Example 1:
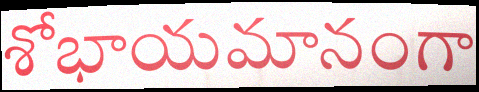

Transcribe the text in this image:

శోభాయమానంగా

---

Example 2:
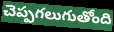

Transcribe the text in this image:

చెప్పగలుగుతోంది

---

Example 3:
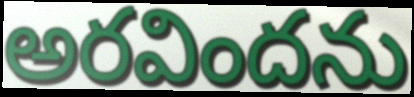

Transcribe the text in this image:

అరవిందను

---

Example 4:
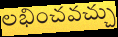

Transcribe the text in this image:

లభించవచ్చు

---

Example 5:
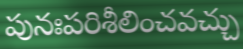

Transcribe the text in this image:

పునఃపరిశీలించవచ్చు